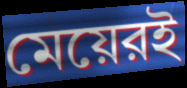
মেয়েরই